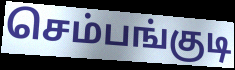
செம்பங்குடி